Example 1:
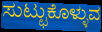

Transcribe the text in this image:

ಸುಟ್ಟುಕೊಳ್ಳುವ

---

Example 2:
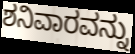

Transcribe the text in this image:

ಶನಿವಾರವನ್ನು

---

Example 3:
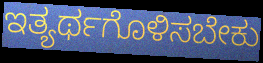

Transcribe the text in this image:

ಇತ್ಯರ್ಥಗೊಳಿಸಬೇಕು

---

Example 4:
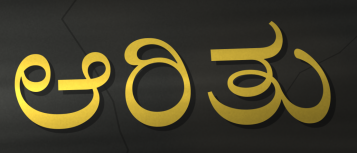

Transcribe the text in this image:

ಆರಿತು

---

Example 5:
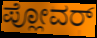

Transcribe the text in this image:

ಪ್ಲೋವರ್